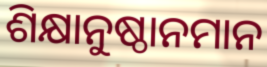
ଶିକ୍ଷାନୁଷ୍ଠାନମାନ